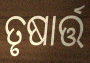
ତୃଷାର୍ତ୍ତ